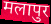
मलापुर